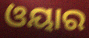
ଓୟାର